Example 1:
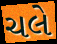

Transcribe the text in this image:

ચલે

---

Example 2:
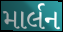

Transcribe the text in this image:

માર્લન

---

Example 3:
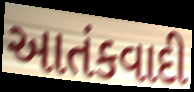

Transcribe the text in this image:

આતંકવાદી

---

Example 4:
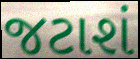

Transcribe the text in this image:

જટાશં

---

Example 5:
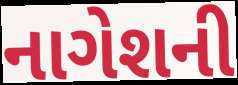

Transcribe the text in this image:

નાગેશની